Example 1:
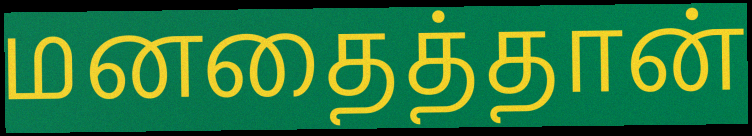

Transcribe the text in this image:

மனதைத்தான்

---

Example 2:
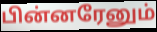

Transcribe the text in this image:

பின்னரேனும்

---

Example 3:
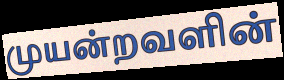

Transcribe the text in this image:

முயன்றவளின்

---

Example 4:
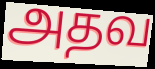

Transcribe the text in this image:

அதவ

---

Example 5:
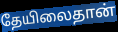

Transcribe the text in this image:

தேயிலைதான்